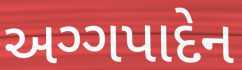
અગ્ગપાદેન